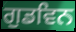
ਗੁਡਵਿਨ